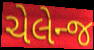
ચેલેન્જ